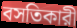
বসতিকারী